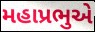
મહાપ્રભુએ